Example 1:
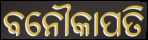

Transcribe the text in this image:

ବନୌକାପତି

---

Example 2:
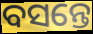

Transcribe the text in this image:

ବସନ୍ତେ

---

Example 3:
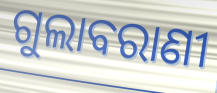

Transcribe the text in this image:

ଗୁଲାବରାଣୀ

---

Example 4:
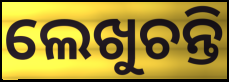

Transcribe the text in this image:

ଲେଖୁଚନ୍ତି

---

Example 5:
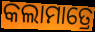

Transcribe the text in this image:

କଲାମାତ୍ରେ